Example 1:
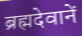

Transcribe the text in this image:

ब्रह्मदेवानें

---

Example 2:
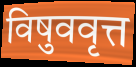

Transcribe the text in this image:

विषुववृत्त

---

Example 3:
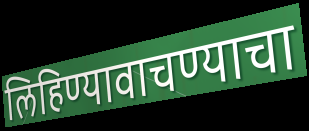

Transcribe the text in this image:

लिहिण्यावाचण्याचा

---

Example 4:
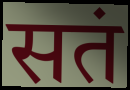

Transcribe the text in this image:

सतं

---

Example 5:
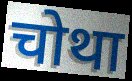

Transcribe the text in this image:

चोथा